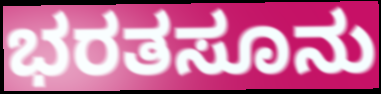
ಭರತಸೂನು